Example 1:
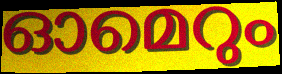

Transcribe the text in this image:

ഓമെറും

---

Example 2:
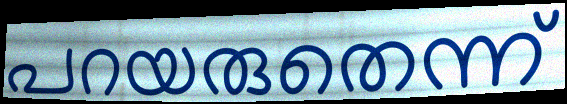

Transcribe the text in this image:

പറയരുതെന്ന്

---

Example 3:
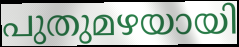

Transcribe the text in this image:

പുതുമഴയായി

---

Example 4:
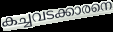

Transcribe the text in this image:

കച്ചവടക്കാരനെ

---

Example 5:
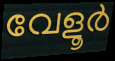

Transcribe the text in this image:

വേളൂർ